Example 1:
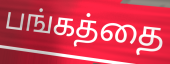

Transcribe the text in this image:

பங்கத்தை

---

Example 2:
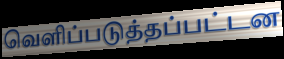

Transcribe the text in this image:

வெளிப்படுத்தப்பட்டன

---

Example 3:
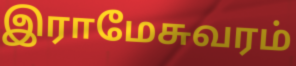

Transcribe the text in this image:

இராமேசுவரம்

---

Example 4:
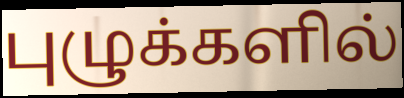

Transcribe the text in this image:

புழுக்களில்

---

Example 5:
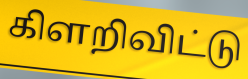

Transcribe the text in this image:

கிளறிவிட்டு